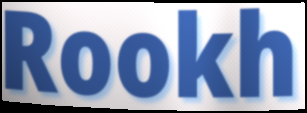
Rookh